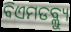
ବିଏମଡବ୍ଲ୍ୟୁ